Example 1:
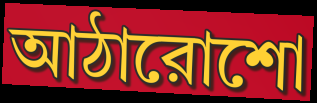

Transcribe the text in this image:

আঠারোশো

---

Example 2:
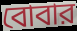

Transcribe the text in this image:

বোবার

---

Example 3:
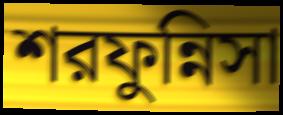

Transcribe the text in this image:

শরফুন্নিসা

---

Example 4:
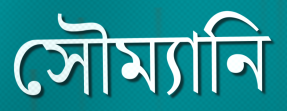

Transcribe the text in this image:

সৌম্যানি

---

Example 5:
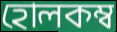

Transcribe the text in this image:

হোলকম্ব